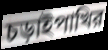
চড়াইপাখির